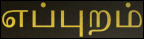
எப்புறம்